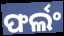
ଫର୍ଲଂ